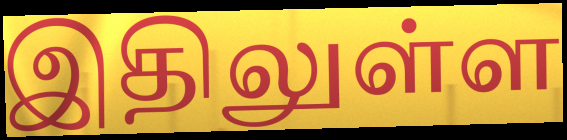
இதிலுள்ள